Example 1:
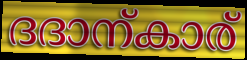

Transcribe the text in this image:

ദദാന്കാര്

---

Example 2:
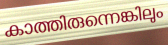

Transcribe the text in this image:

കാത്തിരുന്നെങ്കിലും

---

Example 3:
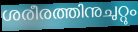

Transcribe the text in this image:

ശരീരത്തിനുചുറ്റും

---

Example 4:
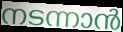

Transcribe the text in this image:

നടന്നാൻ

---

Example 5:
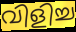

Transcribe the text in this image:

വിളിച്ച